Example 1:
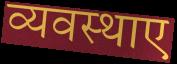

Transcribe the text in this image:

व्यवस्थाए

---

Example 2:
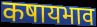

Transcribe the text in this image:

कषायभाव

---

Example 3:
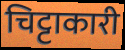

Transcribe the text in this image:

चिट्टाकारी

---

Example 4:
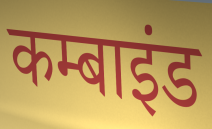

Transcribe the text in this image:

कम्बाइंड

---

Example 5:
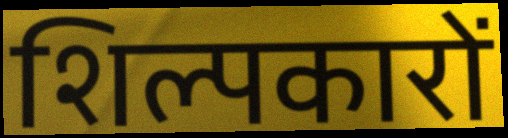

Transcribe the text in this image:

शिल्पकारों